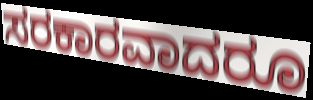
ಸರಕಾರವಾದರೂ